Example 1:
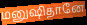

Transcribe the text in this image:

மனுஷிதானே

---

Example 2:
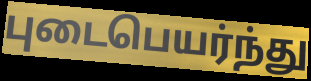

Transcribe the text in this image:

புடைபெயர்ந்து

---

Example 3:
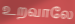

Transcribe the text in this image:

உறவாலே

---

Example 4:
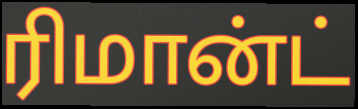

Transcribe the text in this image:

ரிமான்ட்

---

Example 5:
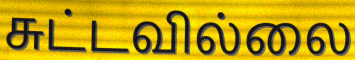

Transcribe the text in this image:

சுட்டவில்லை